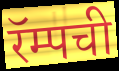
रॅम्पची